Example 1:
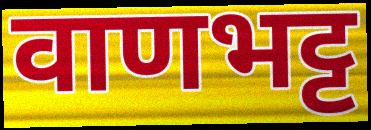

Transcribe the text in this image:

वाणभट्ट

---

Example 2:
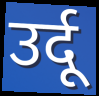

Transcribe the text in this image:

उर्दू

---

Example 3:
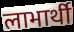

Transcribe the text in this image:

लाभार्थी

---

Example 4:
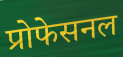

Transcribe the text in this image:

प्रोफेसनल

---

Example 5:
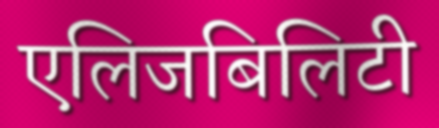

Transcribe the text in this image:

एलिजबिलिटी